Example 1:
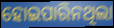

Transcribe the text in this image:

ହୋଇପାରିନଥିଲା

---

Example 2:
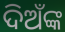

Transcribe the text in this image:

ଦିଅଁଙ୍କ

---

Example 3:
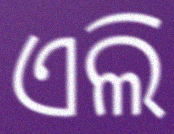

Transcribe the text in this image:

ଏଲି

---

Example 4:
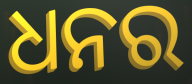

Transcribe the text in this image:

ଧନର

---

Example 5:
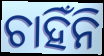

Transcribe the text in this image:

ଚାହିଁନି